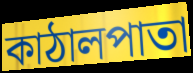
কাঠালপাতা